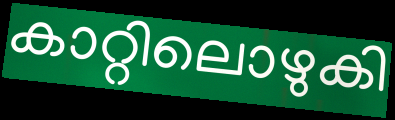
കാറ്റിലൊഴുകി